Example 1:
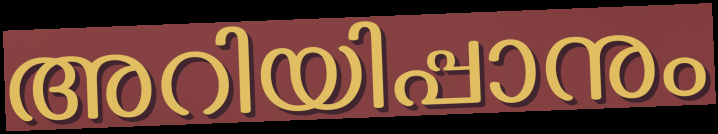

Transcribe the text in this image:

അറിയിപ്പാനും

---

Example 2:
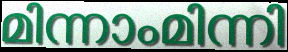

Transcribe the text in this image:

മിന്നാംമിന്നി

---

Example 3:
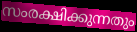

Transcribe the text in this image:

സംരക്ഷിക്കുന്നതും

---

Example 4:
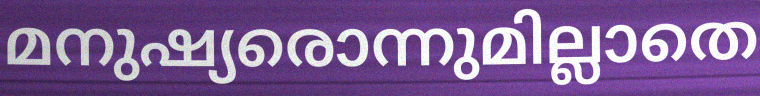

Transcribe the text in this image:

മനുഷ്യരൊന്നുമില്ലാതെ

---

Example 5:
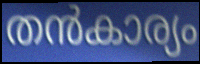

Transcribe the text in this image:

തൻകാര്യം